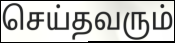
செய்தவரும்